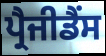
ਪ੍ਰੈਜੀਡੈਂਸ